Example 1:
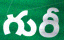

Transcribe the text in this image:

గురీ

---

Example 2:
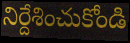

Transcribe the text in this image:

నిర్దేశించుకోండి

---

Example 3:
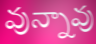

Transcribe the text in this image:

వున్నావు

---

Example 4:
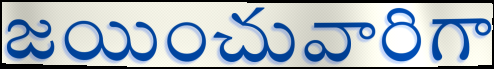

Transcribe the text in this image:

జయించువారిగా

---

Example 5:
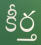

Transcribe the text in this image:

కీర్త